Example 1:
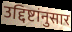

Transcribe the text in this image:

उद्दिष्टांनुसार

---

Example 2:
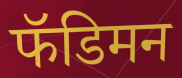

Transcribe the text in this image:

फॅडिमन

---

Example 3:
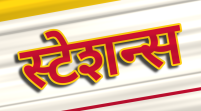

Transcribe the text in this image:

स्टेशन्स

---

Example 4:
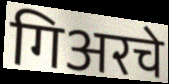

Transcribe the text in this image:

गिअरचे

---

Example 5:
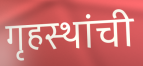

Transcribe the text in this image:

गृहस्थांची